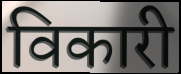
विकारी